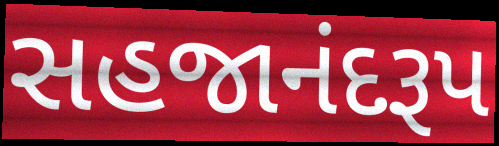
સહજાનંદરૂપ